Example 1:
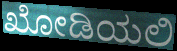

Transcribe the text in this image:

ಖೋಡಿಯಲಿ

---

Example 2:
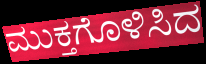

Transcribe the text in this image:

ಮುಕ್ತಗೊಳಿಸಿದ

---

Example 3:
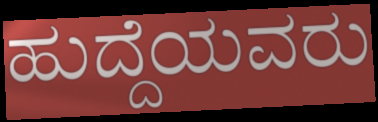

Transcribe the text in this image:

ಹುದ್ದೆಯವರು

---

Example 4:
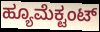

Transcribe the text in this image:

ಹ್ಯೂಮೆಕ್ಟಂಟ್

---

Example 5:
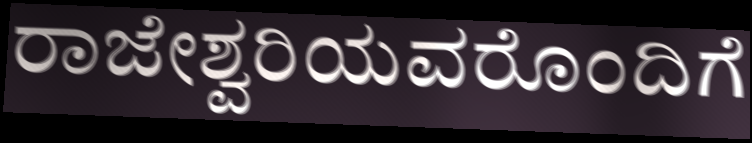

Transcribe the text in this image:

ರಾಜೇಶ್ವರಿಯವರೊಂದಿಗೆ